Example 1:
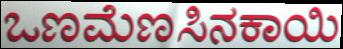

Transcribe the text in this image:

ಒಣಮೆಣಸಿನಕಾಯಿ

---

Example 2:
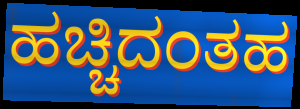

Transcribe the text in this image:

ಹಚ್ಚಿದಂತಹ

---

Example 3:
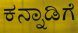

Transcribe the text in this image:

ಕನ್ನಾಡಿಗೆ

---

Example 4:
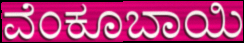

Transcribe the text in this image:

ವೆಂಕೂಬಾಯಿ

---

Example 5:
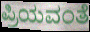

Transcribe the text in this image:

ಪ್ರಿಯವಂತೆ